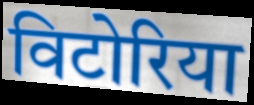
विटोरिया